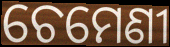
ଚେମେଣୀ